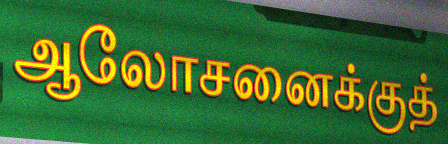
ஆலோசனைக்குத்